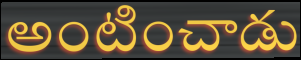
అంటించాడు